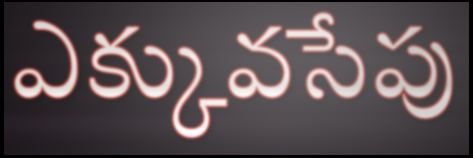
ఎక్కువసేపు